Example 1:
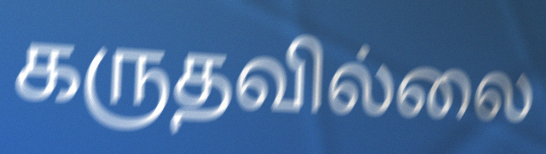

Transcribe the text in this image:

கருதவில்லை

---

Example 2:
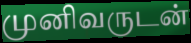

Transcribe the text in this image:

முனிவருடன்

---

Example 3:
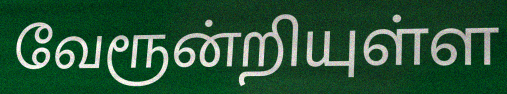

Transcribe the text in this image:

வேரூன்றியுள்ள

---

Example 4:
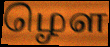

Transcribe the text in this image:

ழௌ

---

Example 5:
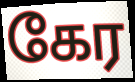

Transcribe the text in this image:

கேர